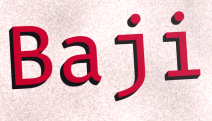
Baji